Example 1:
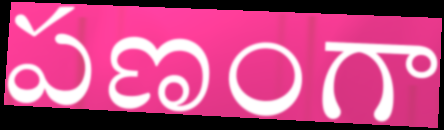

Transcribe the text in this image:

పణంగా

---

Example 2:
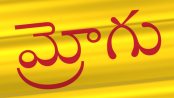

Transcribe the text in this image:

మ్రోగు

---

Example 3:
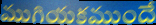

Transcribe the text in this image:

ముగియకముందే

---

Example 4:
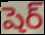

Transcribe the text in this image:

షెర్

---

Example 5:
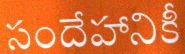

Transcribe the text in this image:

సందేహానికీ